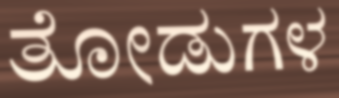
ತೋಡುಗಳ